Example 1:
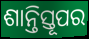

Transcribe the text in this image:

ଶାନ୍ତିସ୍ତୂପର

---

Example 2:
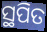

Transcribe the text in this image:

ସ୍ଥପିତ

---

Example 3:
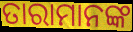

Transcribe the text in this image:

ତାରାମାନଙ୍କ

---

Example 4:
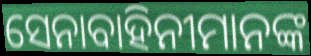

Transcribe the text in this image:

ସେନାବାହିନୀମାନଙ୍କ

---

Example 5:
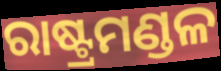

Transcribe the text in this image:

ରାଷ୍ଟ୍ରମଣ୍ଡଳ